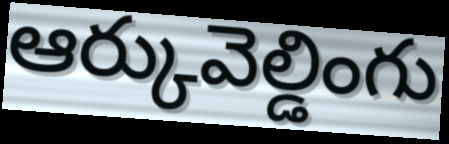
ఆర్కువెల్డింగు